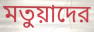
মতুয়াদের